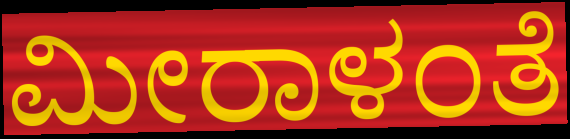
ಮೀರಾಳಂತೆ